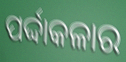
ପର୍ଦ୍ଦାକଳାର